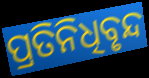
ପ୍ରତିନିଧିବୃନ୍ଦ